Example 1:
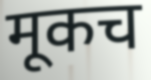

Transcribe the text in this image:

मूकच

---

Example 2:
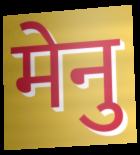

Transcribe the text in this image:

मेनु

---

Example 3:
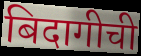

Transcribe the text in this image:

बिदागीची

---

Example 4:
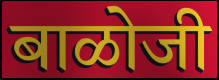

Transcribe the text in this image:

बाळोजी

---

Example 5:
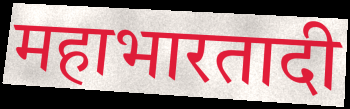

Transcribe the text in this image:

महाभारतादी